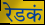
रेडकं